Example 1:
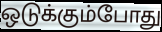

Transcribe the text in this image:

ஒடுக்கும்போது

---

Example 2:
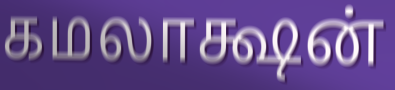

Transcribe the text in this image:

கமலாக்ஷன்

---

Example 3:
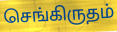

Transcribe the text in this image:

செங்கிருதம்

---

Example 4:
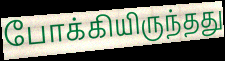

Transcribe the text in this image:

போக்கியிருந்தது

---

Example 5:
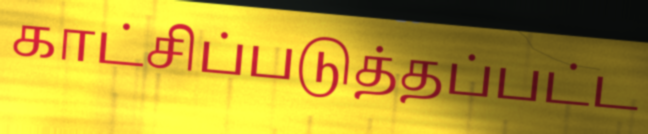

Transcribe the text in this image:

காட்சிப்படுத்தப்பட்ட